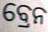
ବ୍ରେନ